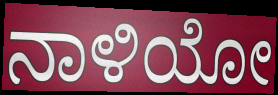
ನಾಳಿಯೋ